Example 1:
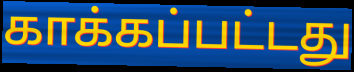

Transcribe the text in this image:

காக்கப்பட்டது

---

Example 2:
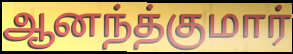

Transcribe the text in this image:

ஆனந்த்குமார்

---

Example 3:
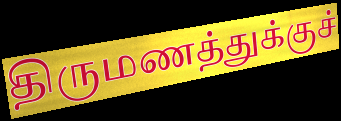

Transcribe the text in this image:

திருமணத்துக்குச்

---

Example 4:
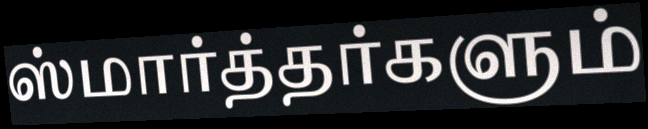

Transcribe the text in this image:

ஸ்மார்த்தர்களும்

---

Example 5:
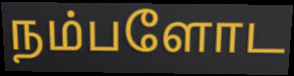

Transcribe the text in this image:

நம்பளோட